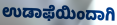
ಉಡಾಫೆಯಿಂದಾಗಿ